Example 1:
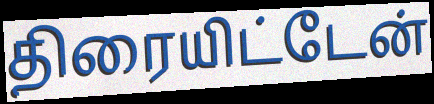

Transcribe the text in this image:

திரையிட்டேன்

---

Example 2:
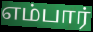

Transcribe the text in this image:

எம்பார்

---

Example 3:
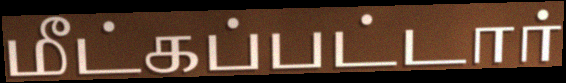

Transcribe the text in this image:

மீட்கப்பட்டார்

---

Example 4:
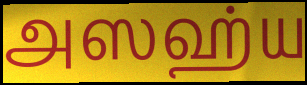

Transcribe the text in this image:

அஸஹ்ய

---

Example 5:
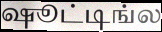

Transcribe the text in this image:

ஷூட்டிங்ல